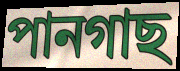
পানগাছ